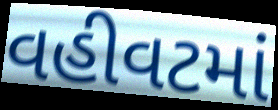
વહીવટમાં